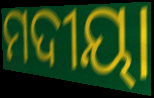
ମଦୀୟା